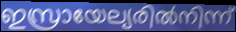
ഇസ്രായേല്യരിൽനിന്ന്